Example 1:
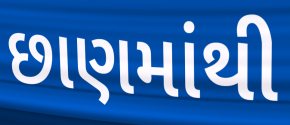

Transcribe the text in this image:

છાણમાંથી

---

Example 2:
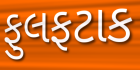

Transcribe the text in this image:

ફુલફટાક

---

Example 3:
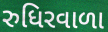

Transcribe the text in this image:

રુધિરવાળા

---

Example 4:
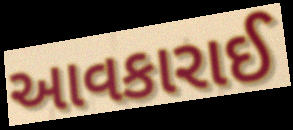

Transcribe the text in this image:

આવકારાઈ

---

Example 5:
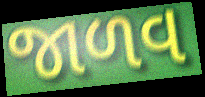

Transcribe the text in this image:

જાળવ